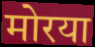
मोरया